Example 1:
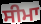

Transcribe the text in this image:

ਸੀਮਾ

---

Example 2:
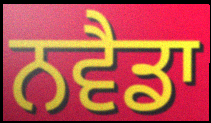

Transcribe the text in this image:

ਨਵੈਡਾ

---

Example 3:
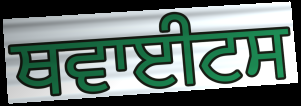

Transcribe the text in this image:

ਥਵਾਈਟਸ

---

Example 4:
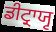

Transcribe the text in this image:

ਡੀਟ੍ਰਾਯ੍ਟ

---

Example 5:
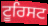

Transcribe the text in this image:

ਟੂਰਿਸਟ